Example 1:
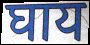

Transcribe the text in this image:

घाय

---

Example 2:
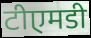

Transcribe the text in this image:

टीएमडी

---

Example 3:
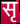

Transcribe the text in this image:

सृ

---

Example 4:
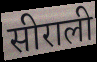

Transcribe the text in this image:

सीराली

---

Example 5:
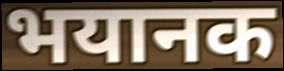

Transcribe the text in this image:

भयानक